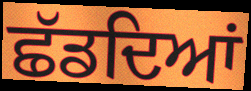
ਛੱਡਦਿਆਂ